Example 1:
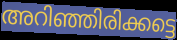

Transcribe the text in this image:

അറിഞ്ഞിരിക്കട്ടെ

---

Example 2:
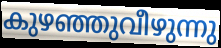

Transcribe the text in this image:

കുഴഞ്ഞുവീഴുന്നു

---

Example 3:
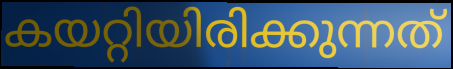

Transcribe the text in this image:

കയറ്റിയിരിക്കുന്നത്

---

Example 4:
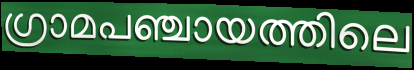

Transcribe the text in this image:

ഗ്രാമപഞ്ചായത്തിലെ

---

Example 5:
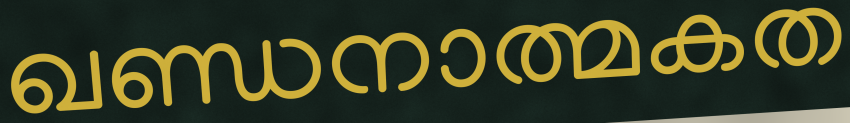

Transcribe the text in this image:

ഖണ്ഡനാത്മകത